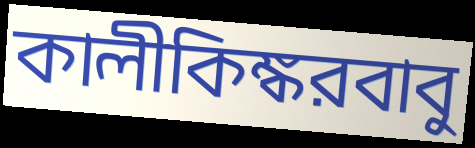
কালীকিঙ্করবাবু